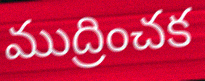
ముద్రించక